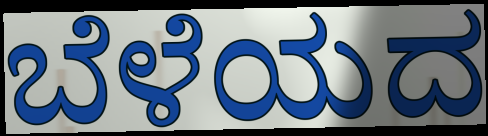
ಬೆಳೆಯದ